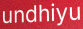
undhiyu